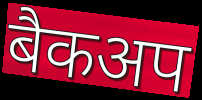
बैकअप